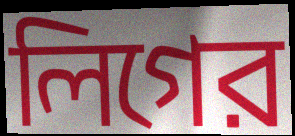
লিগের